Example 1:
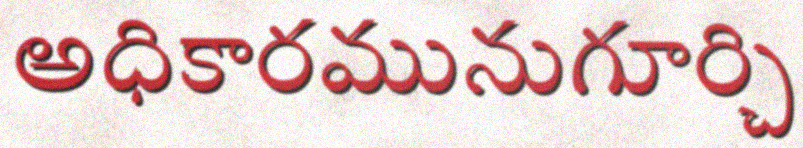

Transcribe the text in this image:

అధికారమునుగూర్చి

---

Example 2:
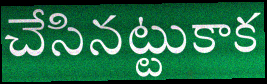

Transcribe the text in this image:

చేసినట్టుకాక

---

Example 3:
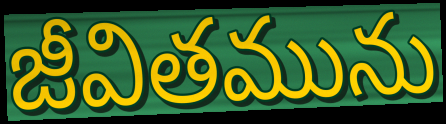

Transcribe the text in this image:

జీవితమును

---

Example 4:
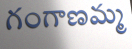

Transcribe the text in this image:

గంగాణమ్మ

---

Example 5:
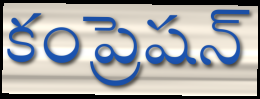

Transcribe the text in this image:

కంప్రెషన్